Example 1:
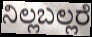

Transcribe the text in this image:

ನಿಲ್ಲಬಲ್ಲರೆ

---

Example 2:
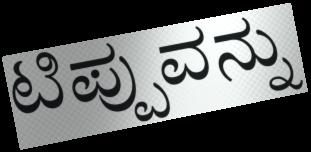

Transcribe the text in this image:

ಟಿಪ್ಪುವನ್ನು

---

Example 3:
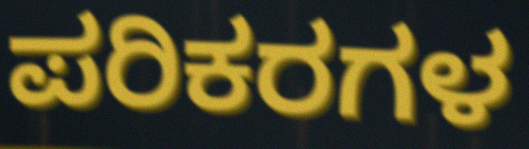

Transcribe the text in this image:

ಪರಿಕರಗಳ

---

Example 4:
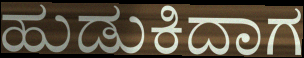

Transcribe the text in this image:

ಹುಡುಕಿದಾಗ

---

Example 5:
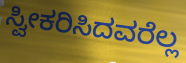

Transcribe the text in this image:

ಸ್ವೀಕರಿಸಿದವರೆಲ್ಲ